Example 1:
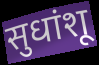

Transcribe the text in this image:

सुधांशू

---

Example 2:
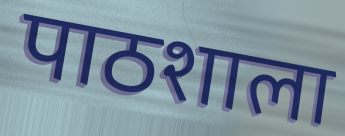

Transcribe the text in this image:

पाठशाला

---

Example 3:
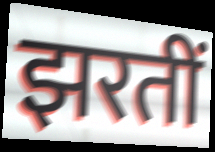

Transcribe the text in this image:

झरतीं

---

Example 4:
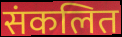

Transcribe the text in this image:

संकलित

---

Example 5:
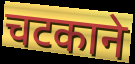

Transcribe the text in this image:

चटकाने